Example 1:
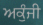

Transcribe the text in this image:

ਅਕੁੰਜੀ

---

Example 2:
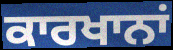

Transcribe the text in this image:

ਕਾਰਖਾਨਾਂ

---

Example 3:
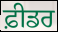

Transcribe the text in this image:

ਫ਼ੀਡਰ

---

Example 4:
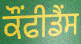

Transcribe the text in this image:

ਕੌਂਫੀਡੈਂਸ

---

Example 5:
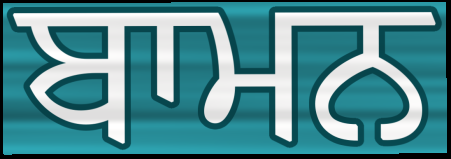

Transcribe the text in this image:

ਬਾਮਨ